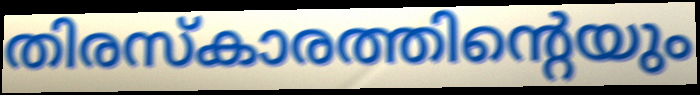
തിരസ്കാരത്തിന്റെയും